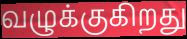
வழுக்குகிறது